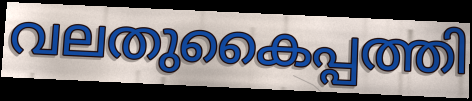
വലതുകൈപ്പത്തി